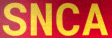
SNCA